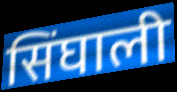
सिंघाली